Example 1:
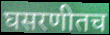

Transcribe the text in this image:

घसरणीतच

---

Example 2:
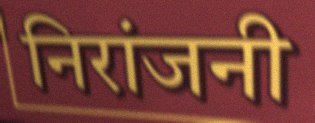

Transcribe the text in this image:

निरांजनी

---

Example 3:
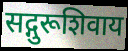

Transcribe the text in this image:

सद्गुरूशिवाय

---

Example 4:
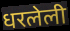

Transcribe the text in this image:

धरलेली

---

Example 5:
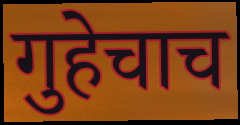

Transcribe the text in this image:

गुहेचाच